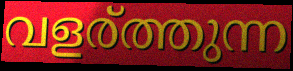
വളര്ത്തുന്ന